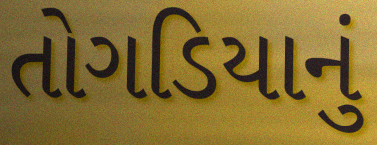
તોગડિયાનું